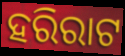
ହରିରାଟ